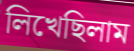
লিখেছিলাম